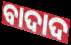
ବାଦାଦ